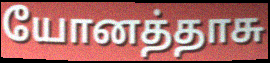
யோனத்தாசு